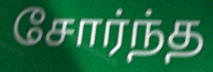
சோர்ந்த